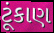
ટૂંકાણ